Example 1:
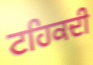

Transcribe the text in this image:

ਟਹਿਕਦੀ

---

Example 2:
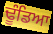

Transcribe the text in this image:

ਢੂੰਡਿਆ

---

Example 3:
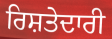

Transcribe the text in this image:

ਰਿਸ਼ਤੇਦਾਰੀ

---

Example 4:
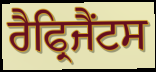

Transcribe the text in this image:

ਰੈਫ੍ਰਿਜੈਂਟਸ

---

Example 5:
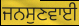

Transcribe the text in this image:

ਜਨਸੁਣਵਾਈ